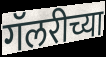
गॅलरीच्या